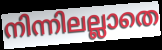
നിന്നിലല്ലാതെ